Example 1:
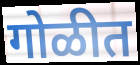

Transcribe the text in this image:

गोळीत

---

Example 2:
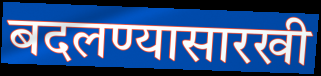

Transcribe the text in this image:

बदलण्यासारखी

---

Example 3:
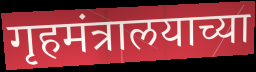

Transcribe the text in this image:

गृहमंत्रालयाच्या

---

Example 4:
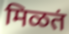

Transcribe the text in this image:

मिळतं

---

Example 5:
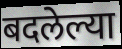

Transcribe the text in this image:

बदलेल्या